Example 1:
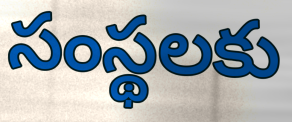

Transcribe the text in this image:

సంస్థలకు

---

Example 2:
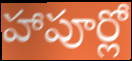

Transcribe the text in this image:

హాపూర్లో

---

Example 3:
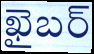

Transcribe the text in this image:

ఖైబర్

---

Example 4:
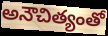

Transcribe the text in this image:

అనౌచిత్యంతో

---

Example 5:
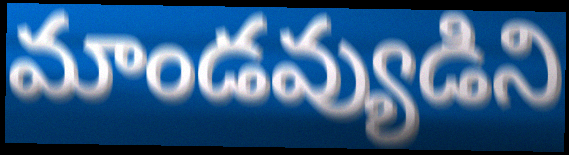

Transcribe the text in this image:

మాండవ్యుడిని